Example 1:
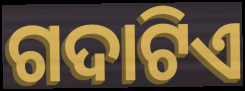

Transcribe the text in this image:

ଗଦାଟିଏ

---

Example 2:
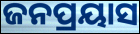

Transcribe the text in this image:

ଜନପ୍ରୟାସ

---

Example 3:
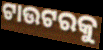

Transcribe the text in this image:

ଟାଉଟରକୁ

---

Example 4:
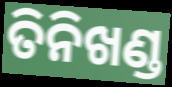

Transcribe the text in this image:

ତିନିଖଣ୍ଡ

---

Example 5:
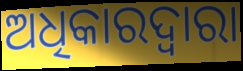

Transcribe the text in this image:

ଅଧିକାରଦ୍ୱାରା